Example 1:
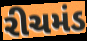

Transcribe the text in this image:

રીચમંડ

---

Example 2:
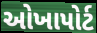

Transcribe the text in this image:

ઓખાપોર્ટ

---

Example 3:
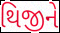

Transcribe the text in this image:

થિજીને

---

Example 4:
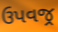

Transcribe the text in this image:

ઉપવજ્ર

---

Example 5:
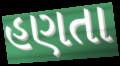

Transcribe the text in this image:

હણતા